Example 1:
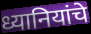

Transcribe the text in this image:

ध्यानियांचे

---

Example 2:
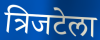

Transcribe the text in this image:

त्रिजटेला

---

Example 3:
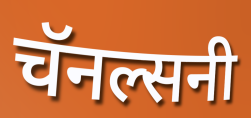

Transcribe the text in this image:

चॅनल्सनी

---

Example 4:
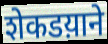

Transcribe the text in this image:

शेकडय़ाने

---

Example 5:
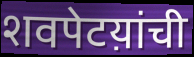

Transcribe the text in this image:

शवपेटय़ांची